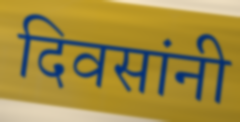
दिवसांनी